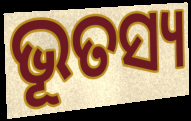
ଭୂତସ୍ୟ